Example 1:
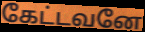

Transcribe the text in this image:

கேட்டவனே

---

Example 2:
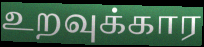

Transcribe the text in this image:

உறவுக்கார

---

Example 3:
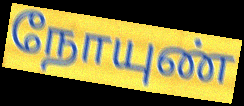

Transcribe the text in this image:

நோயுண்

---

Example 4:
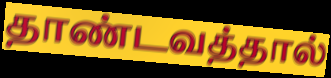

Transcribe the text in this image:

தாண்டவத்தால்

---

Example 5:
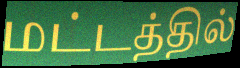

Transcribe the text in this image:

மட்டத்தில்